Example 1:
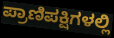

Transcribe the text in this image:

ಪ್ರಾಣಿಪಕ್ಷಿಗಳಲ್ಲಿ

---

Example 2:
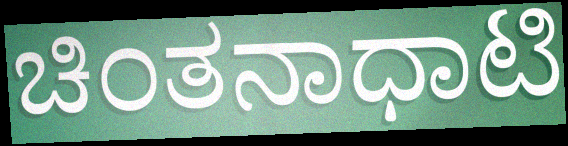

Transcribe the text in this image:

ಚಿಂತನಾಧಾಟಿ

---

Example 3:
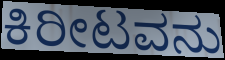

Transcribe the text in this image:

ಕಿರೀಟವನು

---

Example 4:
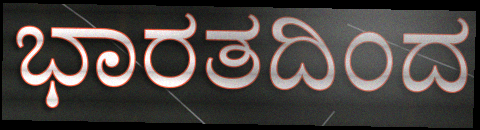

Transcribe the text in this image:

ಭಾರತದಿಂದ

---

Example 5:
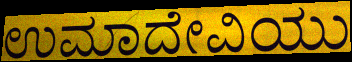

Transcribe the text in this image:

ಉಮಾದೇವಿಯು